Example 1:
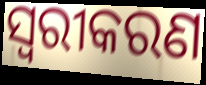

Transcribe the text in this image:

ସ୍ୱରୀକରଣ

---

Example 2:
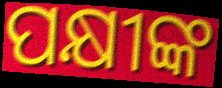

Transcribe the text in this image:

ପକ୍ଷୀଙ୍କ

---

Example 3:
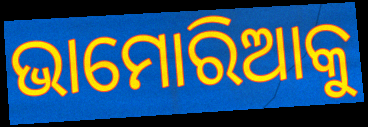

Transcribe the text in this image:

ଭାମୋରିଆକୁ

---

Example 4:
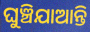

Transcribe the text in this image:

ଘୁଞ୍ଚିଯାଆନ୍ତି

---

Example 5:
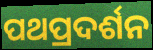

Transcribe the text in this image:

ପଥପ୍ରଦର୍ଶନ